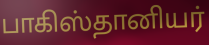
பாகிஸ்தானியர்